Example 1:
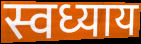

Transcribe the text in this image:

स्वध्याय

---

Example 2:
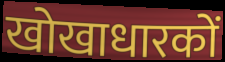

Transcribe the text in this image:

खोखाधारकों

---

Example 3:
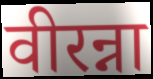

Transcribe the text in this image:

वीरन्ना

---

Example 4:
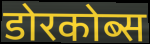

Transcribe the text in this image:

डोरकोब्स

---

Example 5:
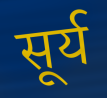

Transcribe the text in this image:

सूर्य